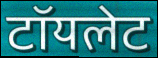
टॉयलेट